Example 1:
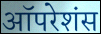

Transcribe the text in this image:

ऑपरेशंस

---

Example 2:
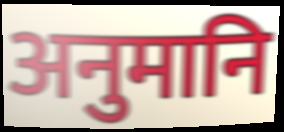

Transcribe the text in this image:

अनुमानि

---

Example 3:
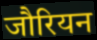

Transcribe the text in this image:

जौरियन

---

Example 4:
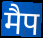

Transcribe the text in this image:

मैप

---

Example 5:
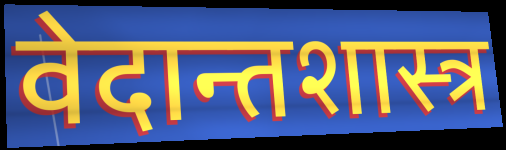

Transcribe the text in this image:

वेदान्तशास्त्र